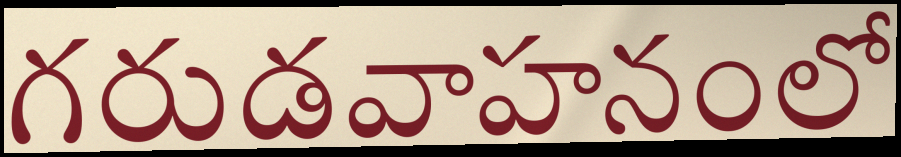
గరుడవాహనంలో